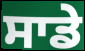
ਸਾਡੇ